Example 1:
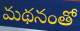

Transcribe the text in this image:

మథనంతో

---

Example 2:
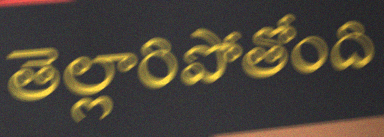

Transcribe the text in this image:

తెల్లారిపోతోంది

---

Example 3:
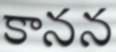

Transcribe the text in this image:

కానన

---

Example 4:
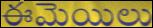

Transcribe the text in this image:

ఈమెయిలు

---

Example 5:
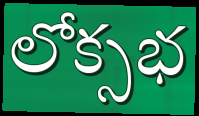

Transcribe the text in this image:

లోక్సభ